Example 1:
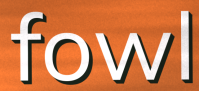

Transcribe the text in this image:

fowl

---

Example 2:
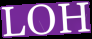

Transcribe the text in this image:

LOH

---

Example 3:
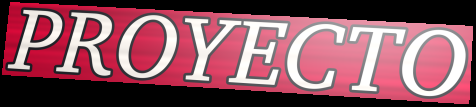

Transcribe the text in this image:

PROYECTO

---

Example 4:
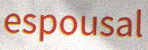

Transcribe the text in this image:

espousal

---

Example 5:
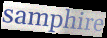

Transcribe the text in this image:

samphire